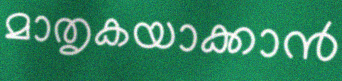
മാതൃകയാക്കാൻ